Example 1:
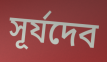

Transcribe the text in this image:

সূর্যদেব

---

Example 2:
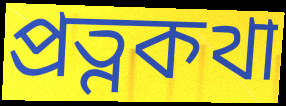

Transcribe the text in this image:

প্রত্নকথা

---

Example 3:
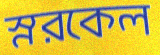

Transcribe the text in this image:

স্নরকেল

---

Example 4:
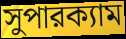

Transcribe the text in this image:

সুপারক্যাম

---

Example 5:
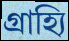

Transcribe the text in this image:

গ্রাহ্যি